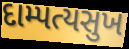
દામ્પત્યસુખ